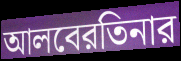
আলবেরতিনার